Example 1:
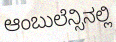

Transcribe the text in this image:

ಆಂಬುಲೆನ್ಸಿನಲ್ಲಿ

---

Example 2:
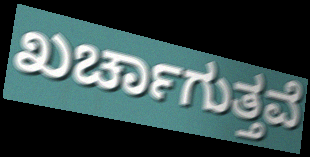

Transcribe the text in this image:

ಖರ್ಚಾಗುತ್ತವೆ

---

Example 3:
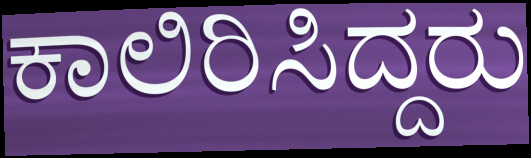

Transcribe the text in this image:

ಕಾಲಿರಿಸಿದ್ದರು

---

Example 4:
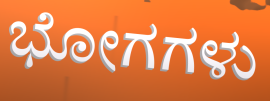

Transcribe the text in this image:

ಭೋಗಗಳು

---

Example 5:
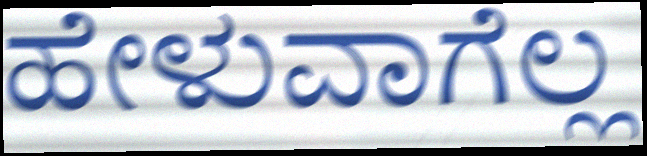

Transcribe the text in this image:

ಹೇಳುವಾಗೆಲ್ಲ